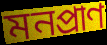
মনপ্রাণ